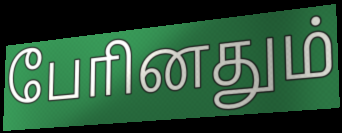
பேரினதும்